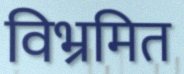
विभ्रमित